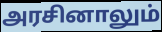
அரசினாலும்